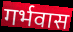
गर्भवास